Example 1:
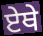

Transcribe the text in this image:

ਏਥੇ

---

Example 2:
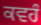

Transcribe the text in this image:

ਕਵਹੰ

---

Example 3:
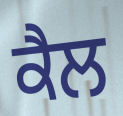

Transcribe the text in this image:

ਕੈਲ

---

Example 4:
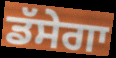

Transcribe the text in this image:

ਡੱਸੇਗਾ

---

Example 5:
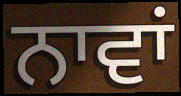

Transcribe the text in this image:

ਨਾਵਾਂ